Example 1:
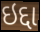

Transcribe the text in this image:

ઇદ્દા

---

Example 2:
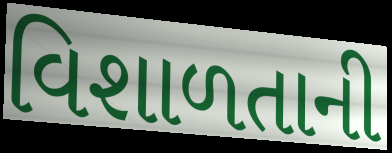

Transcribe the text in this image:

વિશાળતાની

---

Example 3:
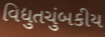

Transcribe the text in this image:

વિદ્યુતચુંબકીય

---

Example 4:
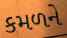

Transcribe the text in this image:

કમળને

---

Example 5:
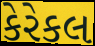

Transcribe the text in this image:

કેરેકલ